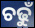
ଚଢୁଁ